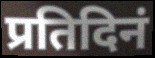
प्रतिदिनं